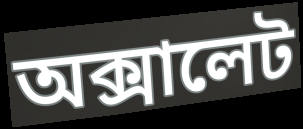
অক্সালেট